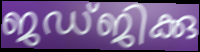
ജഡ്ജിക്കു